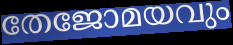
തേജോമയവും